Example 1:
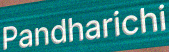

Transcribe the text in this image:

Pandharichi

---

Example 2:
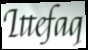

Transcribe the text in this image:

Ittefaq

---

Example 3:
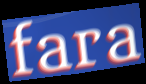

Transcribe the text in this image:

fara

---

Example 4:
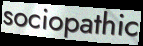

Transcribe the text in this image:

sociopathic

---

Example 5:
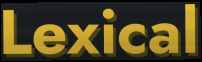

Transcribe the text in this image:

Lexical